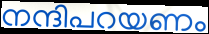
നന്ദിപറയണം